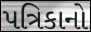
પત્રિકાનો